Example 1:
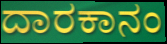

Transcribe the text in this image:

ದಾರಕಾನಂ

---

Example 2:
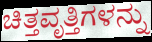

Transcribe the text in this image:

ಚಿತ್ತವೃತ್ತಿಗಳನ್ನು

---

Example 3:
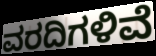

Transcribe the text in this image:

ವರದಿಗಳಿವೆ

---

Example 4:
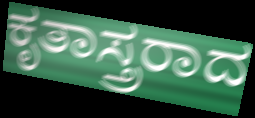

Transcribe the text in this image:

ಕೃತಾಸ್ತ್ರರಾದ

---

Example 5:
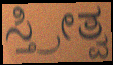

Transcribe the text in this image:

ಸ್ತ್ರೀತ್ವ